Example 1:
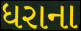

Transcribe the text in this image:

ધરાના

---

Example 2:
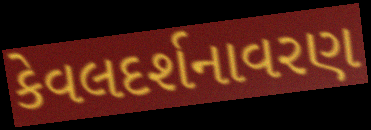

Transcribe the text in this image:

કેવલદર્શનાવરણ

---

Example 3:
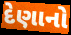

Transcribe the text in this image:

દેણાનો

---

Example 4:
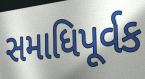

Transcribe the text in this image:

સમાધિપૂર્વક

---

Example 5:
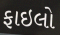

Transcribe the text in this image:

ફાઇલો